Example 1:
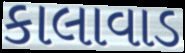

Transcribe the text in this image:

કાલાવાડ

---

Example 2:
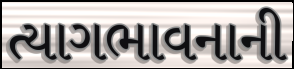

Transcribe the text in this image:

ત્યાગભાવનાની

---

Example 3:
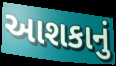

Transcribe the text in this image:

આશકાનું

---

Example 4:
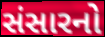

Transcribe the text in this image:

સંસારનો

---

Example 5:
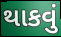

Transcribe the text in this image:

થાકવું